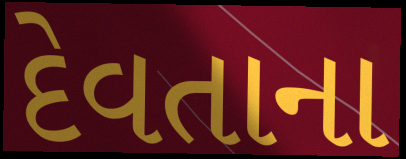
દેવતાના